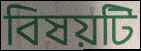
বিষয়টি